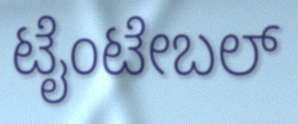
ಟೈಂಟೇಬಲ್